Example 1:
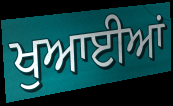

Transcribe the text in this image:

ਖੁਆਈਆਂ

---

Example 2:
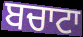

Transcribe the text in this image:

ਬਚਾਟਾ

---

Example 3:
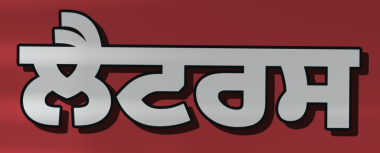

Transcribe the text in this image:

ਲੈਟਰਸ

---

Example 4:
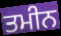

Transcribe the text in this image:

ਤਮੀਨ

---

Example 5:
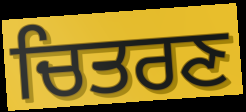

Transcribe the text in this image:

ਚਿਤਰਣ